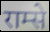
राम्से